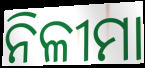
ନିଳୀମା